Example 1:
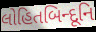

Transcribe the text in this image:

લોહિતબિન્દૂનિ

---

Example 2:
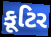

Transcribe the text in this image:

કૂટિર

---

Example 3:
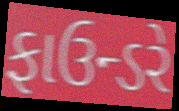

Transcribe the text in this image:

ફાઉન્ડરે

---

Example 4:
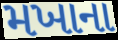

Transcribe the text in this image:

મખાના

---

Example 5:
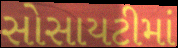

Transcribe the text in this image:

સોસાયટીમાં